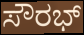
ಸೌರಭ್